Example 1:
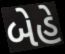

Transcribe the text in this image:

બેહે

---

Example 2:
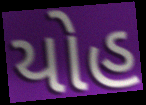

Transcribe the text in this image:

યોહ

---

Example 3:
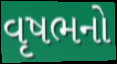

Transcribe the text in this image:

વૃષભનો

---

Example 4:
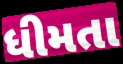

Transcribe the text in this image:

ધીમતા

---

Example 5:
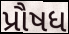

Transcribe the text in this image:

પ્રૌષધ